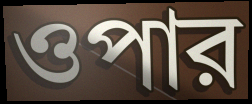
ওপার